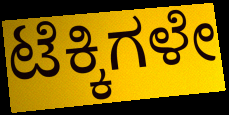
ಟೆಕ್ಕಿಗಳೇ